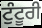
ਟੁੰਟੂਰੀ